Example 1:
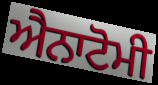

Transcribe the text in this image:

ਐਨਾਟੋਮੀ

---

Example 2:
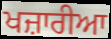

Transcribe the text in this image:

ਖਜ਼ਾਰੀਆ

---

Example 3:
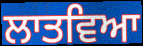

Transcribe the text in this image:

ਲਾਤਵਿਆ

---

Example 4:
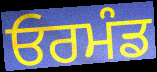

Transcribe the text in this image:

ਓਰਮੰਡ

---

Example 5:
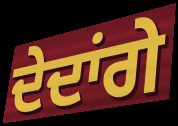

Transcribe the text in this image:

ਦੇਦਾਂਗੇ